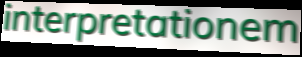
interpretationem